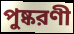
পুষ্করণী